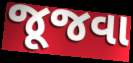
જૂજવા